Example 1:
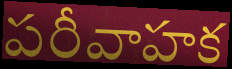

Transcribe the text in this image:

పరీవాహక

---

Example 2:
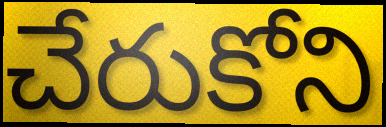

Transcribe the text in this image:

చేరుకోని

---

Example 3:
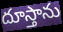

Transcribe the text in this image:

దూస్తాను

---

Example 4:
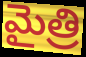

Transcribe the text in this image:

మైత్రి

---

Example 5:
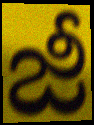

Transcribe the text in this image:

జీ